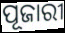
ପୂଜାରୀ